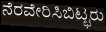
ನೆರವೇರಿಸಿಬಿಟ್ಟರು